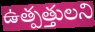
ఉత్పత్తులని